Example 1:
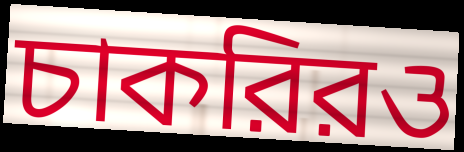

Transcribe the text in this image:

চাকরিরও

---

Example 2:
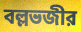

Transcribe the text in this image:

বল্লভজীর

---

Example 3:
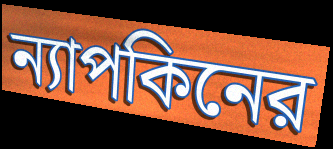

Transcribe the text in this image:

ন্যাপকিনের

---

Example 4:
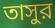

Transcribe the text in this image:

তাসুর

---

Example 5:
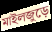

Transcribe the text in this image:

মাইলজুড়ে